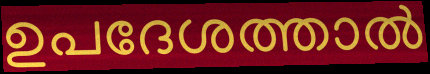
ഉപദേശത്താൽ